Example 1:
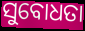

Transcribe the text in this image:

ସୁବୋଧତା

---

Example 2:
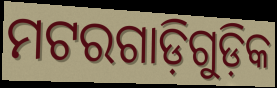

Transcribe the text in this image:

ମଟରଗାଡ଼ିଗୁଡ଼ିକ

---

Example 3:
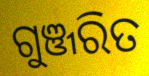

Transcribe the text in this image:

ଗୁଞ୍ଜରିତ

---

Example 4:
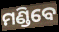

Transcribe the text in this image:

ମଣ୍ଡିବେ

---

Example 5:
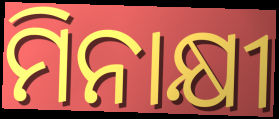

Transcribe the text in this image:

ମିନାକ୍ଷୀ